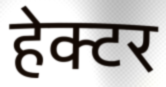
हेक्टर